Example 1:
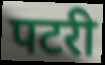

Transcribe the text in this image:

पटरी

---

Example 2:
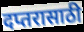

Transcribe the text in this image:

दप्तरासाठी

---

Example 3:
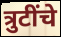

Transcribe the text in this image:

त्रुटींचे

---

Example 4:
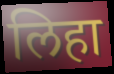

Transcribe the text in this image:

लिहा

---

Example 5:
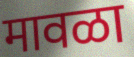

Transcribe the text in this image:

मावळा